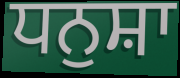
ਧਨੁਸ਼ਾ